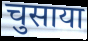
चुसाया